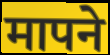
मापने